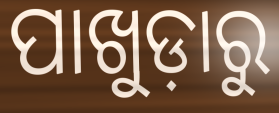
ପାଖୁଡ଼ାରୁ